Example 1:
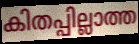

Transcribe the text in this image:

കിതപ്പില്ലാത്ത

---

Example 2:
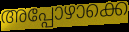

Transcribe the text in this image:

അപ്പോഴാക്കെ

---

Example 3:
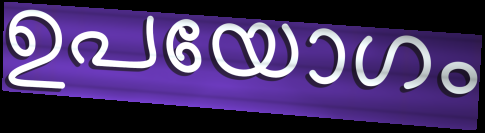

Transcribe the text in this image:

ഉപയോഗം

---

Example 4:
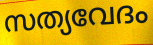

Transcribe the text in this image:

സത്യവേദം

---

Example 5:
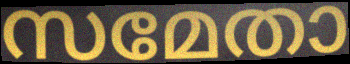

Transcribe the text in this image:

സമേതാ